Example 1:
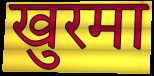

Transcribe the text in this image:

खुरमा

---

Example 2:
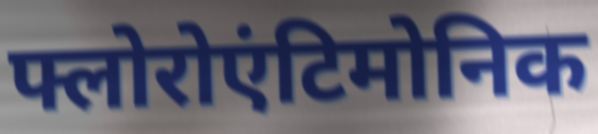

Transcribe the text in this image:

फ्लोरोएंटिमोनिक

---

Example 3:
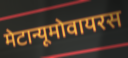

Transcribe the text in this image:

मेटान्यूमोवायरस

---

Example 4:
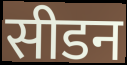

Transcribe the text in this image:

सीडन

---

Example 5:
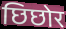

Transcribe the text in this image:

छिछोर